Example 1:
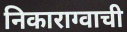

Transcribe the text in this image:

निकाराग्वाची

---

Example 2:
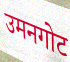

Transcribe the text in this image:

उमनगोट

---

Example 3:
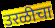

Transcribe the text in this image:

उरळीचा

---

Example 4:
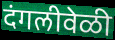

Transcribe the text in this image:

दंगलीवेळी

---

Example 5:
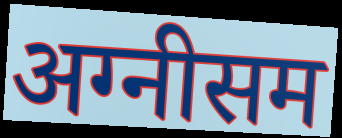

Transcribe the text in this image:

अग्नीसम